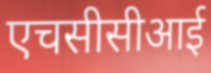
एचसीसीआई